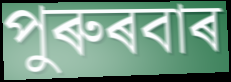
পুৰুৰবাৰ